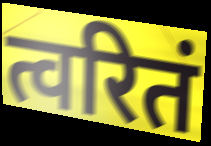
त्वरितं